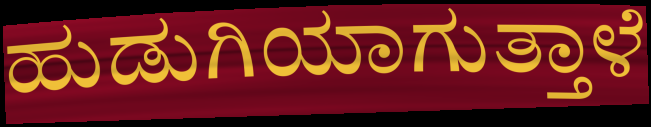
ಹುಡುಗಿಯಾಗುತ್ತಾಳೆ